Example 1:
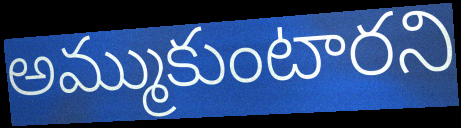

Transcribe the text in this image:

అమ్ముకుంటారని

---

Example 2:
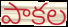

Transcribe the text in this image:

పాకల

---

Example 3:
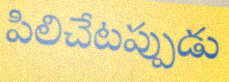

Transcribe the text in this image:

పిలిచేటప్పుడు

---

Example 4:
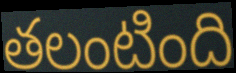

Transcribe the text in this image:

తలంటింది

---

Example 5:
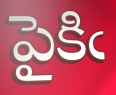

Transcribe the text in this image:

పైకిఁ